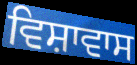
ਵਿਸ਼ਾਵਾਸ